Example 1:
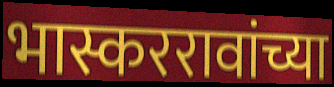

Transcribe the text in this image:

भास्कररावांच्या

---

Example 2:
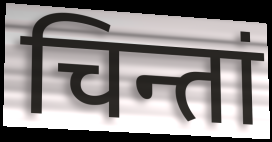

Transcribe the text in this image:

चिन्तां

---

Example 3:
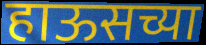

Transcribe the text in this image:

हाऊसच्या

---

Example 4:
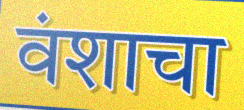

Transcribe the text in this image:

वंशाचा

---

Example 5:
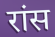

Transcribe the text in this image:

रांस